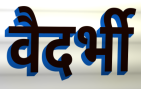
वैदर्भी